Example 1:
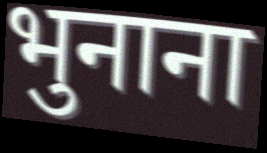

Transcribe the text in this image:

भुनाना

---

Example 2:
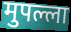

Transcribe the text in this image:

मुपल्ला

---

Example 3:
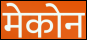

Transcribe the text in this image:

मेकोन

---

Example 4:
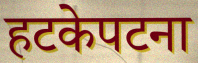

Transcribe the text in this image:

हटकेपटना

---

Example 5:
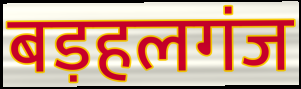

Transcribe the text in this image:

बड़हलगंज